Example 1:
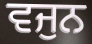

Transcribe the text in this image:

ਵਜੁਨ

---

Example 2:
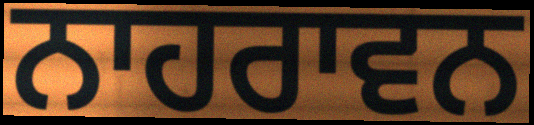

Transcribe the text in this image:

ਨਾਹਰਾਵਨ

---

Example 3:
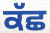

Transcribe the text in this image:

ਕੱਛ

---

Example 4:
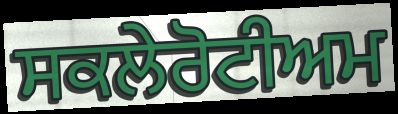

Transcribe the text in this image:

ਸਕਲੇਰੋਟੀਅਮ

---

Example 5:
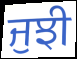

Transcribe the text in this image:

ਜੁਝੀ